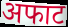
अफाट